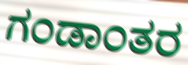
ಗಂಡಾಂತರ